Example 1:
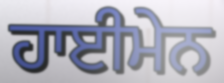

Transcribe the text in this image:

ਹਾਈਮੇਨ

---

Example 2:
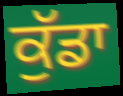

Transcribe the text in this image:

ਕੁੱਡਾ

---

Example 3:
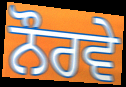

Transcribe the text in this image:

ਨੌਰਵੇ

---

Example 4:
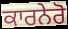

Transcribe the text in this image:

ਕਾਰਨੇਰੋ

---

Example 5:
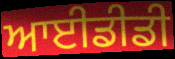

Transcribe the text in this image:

ਆਈਡੀਡੀ